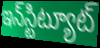
ఇన్‌స్టిట్యూట్